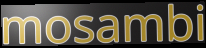
mosambi